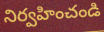
నిర్వహించండి